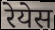
रेयेस